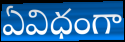
ఏవిధంగా